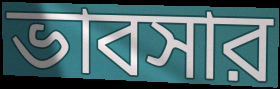
ভাবসার